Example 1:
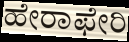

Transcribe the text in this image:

ಹೇರಾಫೇರಿ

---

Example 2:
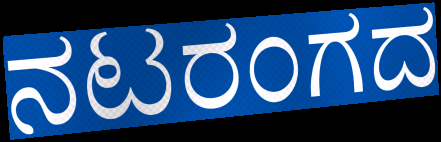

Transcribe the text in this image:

ನಟರಂಗದ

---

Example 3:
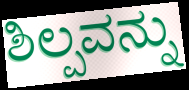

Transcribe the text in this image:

ಶಿಲ್ಪವನ್ನು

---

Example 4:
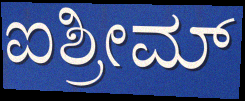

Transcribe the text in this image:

ಐಶ್ರೀಮ್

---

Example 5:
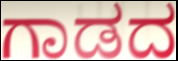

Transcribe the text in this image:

ಗಾಡದ